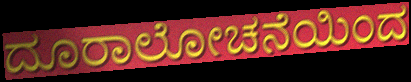
ದೂರಾಲೋಚನೆಯಿಂದ